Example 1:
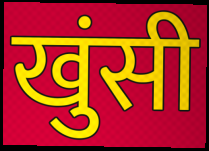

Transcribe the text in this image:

खुंसी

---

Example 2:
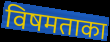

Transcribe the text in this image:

विषमताका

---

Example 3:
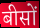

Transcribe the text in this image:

बीसों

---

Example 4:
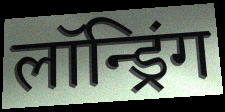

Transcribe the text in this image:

लॉन्ड्रिंग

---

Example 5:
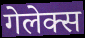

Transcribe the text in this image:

गेलेक्स